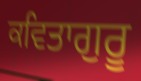
ਕਵਿਤਾਗੁਰੂ